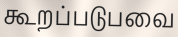
கூறப்படுபவை